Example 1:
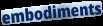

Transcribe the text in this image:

embodiments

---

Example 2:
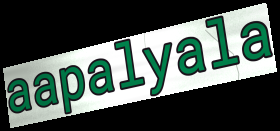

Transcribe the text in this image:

aapalyala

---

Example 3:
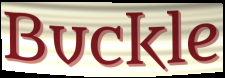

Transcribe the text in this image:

Buckle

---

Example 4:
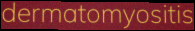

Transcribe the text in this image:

dermatomyositis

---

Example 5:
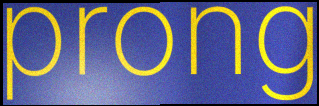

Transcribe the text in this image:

prong